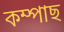
কম্পাছ